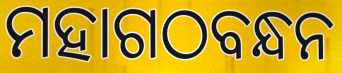
ମହାଗଠବନ୍ଧନ